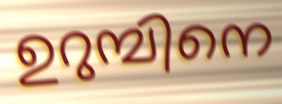
ഉറുമ്പിനെ